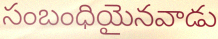
సంబంధియైనవాడు